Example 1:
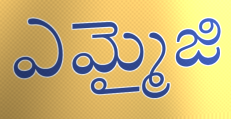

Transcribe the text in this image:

ఎమ్మైజి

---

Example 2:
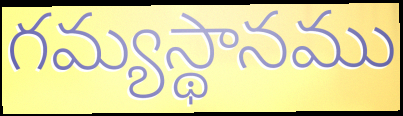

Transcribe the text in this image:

గమ్యస్థానము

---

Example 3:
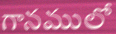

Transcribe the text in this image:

గానములో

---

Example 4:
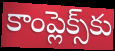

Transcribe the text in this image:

కాంప్లెక్స్‌కు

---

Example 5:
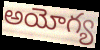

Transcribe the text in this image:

అయోగ్య